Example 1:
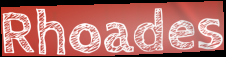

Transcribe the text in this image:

Rhoades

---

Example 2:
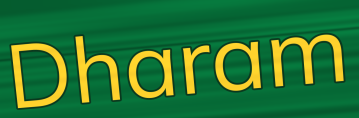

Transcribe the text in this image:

Dharam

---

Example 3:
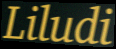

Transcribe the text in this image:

Liludi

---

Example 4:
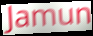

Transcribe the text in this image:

Jamun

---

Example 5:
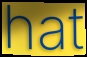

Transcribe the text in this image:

hat